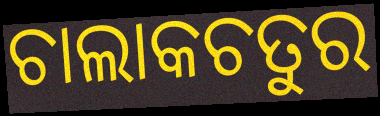
ଚାଲାକଚତୁର